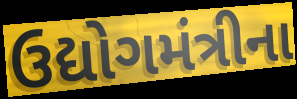
ઉદ્યોગમંત્રીના